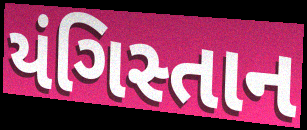
યંગિસ્તાન